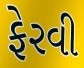
ફેરવી